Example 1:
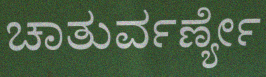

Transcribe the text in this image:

ಚಾತುರ್ವರ್ಣ್ಯೇ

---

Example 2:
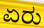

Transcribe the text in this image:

ಏರು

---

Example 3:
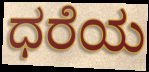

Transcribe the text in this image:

ಧರೆಯ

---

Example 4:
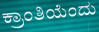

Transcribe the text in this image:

ಕ್ರಾಂತಿಯೆಂದು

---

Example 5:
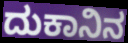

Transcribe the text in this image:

ದುಕಾನಿನ